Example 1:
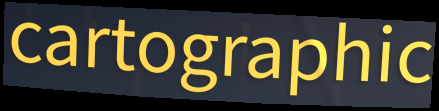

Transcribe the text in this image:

cartographic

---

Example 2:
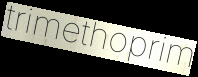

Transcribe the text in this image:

trimethoprim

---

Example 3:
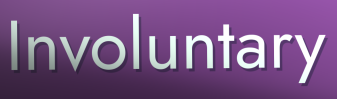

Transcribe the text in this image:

Involuntary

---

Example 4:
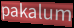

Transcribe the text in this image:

pakalum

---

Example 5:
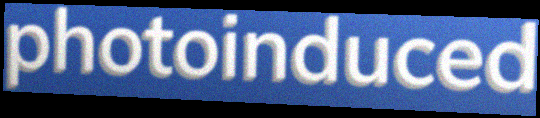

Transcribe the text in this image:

photoinduced